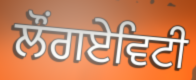
ਲੌਂਗਏਵਿਟੀ